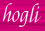
hogli